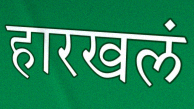
हारखलं